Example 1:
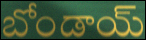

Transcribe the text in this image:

బోండాయ్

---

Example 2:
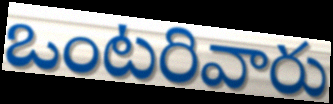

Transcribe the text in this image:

ఒంటరివారు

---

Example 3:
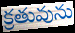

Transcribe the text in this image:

క్రతువును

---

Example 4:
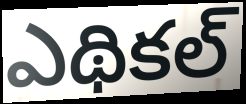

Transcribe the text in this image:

ఎథికల్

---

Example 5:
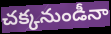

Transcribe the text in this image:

చక్కనుండీనా